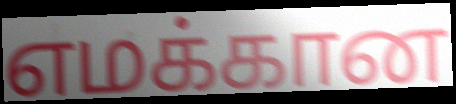
எமக்கான